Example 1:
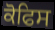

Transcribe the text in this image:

ਕੋਫਿਸ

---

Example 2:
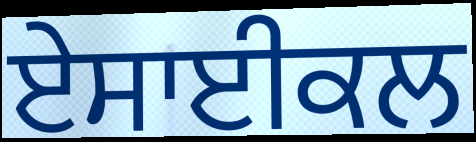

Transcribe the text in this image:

ਏਸਾਈਕਲ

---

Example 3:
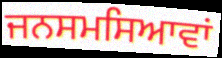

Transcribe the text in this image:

ਜਨਸਮਸਿਆਵਾਂ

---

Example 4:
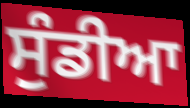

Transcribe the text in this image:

ਸੁੰਡੀਆ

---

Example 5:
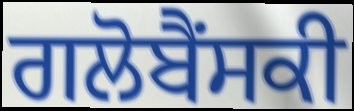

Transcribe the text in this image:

ਗਲੋਬੈਂਸਕੀ